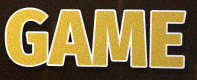
GAME